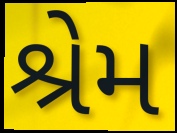
શ્રેમ